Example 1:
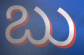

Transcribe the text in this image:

బు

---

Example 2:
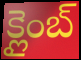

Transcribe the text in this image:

క్లైంబ్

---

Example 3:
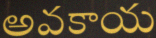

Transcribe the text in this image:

అవకాయ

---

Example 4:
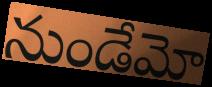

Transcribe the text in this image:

నుండేమో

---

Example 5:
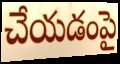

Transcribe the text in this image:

చేయడంపై